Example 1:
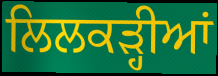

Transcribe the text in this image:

ਲਿਲਕੜ੍ਹੀਆਂ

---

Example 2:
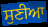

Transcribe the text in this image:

ਸੁਣੀਆ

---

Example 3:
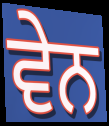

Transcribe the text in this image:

ਵੇਨ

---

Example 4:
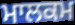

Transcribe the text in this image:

ਮਾਲਕਮ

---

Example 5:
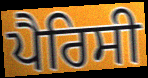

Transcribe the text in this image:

ਪੈਰਿਸੀ